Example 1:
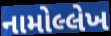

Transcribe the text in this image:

નામોલ્લેખ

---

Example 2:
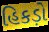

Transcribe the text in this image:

હિકડ઼ો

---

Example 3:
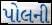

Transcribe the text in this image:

પોલની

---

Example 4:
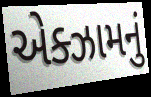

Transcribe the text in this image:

એક્ઝામનું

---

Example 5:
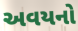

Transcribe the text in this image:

અવયનો